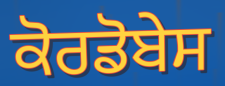
ਕੋਰਡੋਬੇਸ